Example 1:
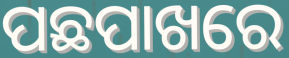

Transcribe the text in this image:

ପଛପାଖରେ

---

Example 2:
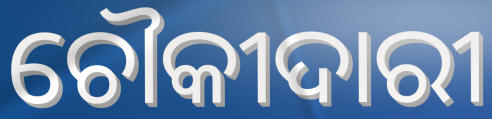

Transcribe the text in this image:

ଚୌକୀଦାରୀ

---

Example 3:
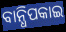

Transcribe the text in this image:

ବାନ୍ଧିପକାଇ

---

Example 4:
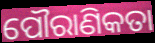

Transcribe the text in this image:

ପୌରାଣିକତା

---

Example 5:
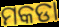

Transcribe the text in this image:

ମକଡା